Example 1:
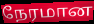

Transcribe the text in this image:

நேரமான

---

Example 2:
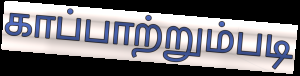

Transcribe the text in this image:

காப்பாற்றும்படி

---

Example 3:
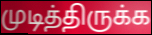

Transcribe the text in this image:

முடித்திருக்க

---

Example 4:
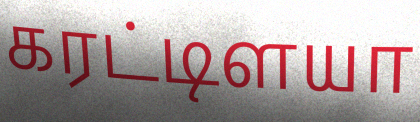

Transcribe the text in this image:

கரட்டிளயா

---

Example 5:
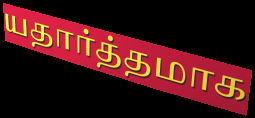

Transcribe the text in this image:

யதார்த்தமாக